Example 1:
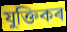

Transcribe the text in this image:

যুক্তিকৰ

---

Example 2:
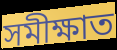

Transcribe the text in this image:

সমীক্ষাত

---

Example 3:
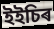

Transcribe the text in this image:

ইইচিৰ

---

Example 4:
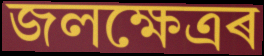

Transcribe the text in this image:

জলক্ষেত্ৰৰ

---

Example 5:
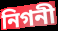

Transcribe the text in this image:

নিগনী